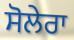
ਸੋਲੇਰਾ